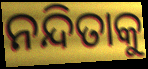
ନନ୍ଦିତାକୁ